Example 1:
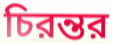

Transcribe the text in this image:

চিরন্তর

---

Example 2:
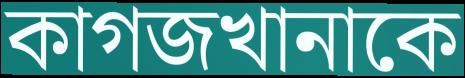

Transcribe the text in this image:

কাগজখানাকে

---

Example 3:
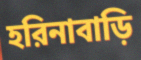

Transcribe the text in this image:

হরিনাবাড়ি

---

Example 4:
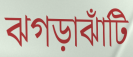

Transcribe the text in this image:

ঝগড়াঝাঁটি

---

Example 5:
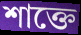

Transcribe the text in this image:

শাক্তে